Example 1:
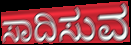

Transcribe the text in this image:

ಸಾದಿಸುವ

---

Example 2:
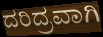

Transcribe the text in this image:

ದರಿದ್ರವಾಗಿ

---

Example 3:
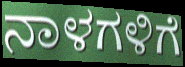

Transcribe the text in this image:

ನಾಳಗಳಿಗೆ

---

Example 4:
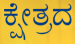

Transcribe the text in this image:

ಕ್ಷೇತ್ರದ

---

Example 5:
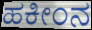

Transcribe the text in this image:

ಹಕೀಂನ